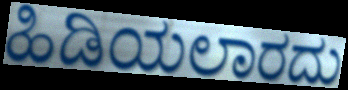
ಹಿಡಿಯಲಾರದು